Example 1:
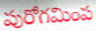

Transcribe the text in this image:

పురోగమింప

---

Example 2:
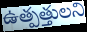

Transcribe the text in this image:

ఉత్పత్తులని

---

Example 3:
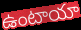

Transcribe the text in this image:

ఉంటాయా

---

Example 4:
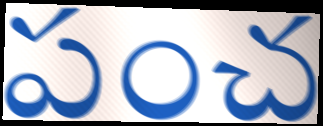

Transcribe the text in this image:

పంచ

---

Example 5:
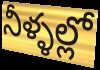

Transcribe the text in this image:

నీళ్ళల్లో